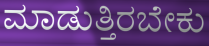
ಮಾಡುತ್ತಿರಬೇಕು